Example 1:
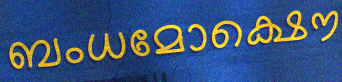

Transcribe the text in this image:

ബംധമോക്ഷൌ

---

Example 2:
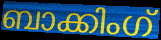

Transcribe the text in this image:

ബാക്കിംഗ്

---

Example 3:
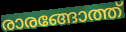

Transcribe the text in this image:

രാരങ്ങോത്ത്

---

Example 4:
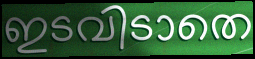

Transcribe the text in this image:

ഇടവിടാതെ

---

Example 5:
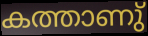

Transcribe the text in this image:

കത്താണു്